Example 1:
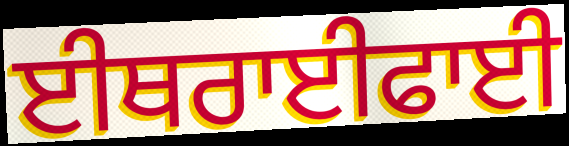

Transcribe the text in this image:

ਈਥਰਾਈਫਾਈ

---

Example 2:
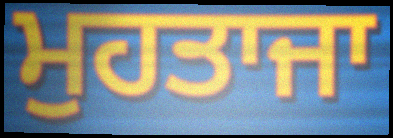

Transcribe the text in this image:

ਮੁਹਤਾਜਾ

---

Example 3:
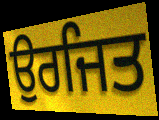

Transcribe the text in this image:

ਉਰਜਿਤ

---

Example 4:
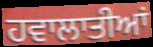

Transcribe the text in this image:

ਹਵਾਲਾਤੀਆਂ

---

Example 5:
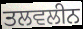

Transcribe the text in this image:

ਤਲਵਲੀਨ